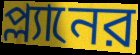
প্ল্যানের